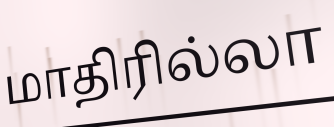
மாதிரில்லா